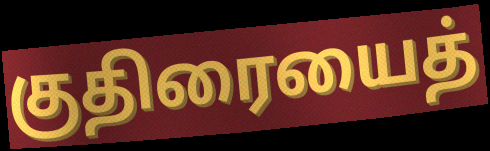
குதிரையைத்